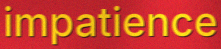
impatience